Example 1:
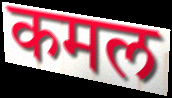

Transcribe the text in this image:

कमल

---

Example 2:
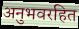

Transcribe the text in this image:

अनुभवरहित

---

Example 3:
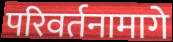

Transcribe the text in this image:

परिवर्तनामागे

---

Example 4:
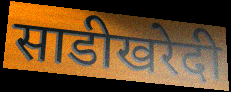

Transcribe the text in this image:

साडीखरेदी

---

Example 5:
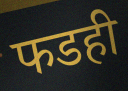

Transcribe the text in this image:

फडही